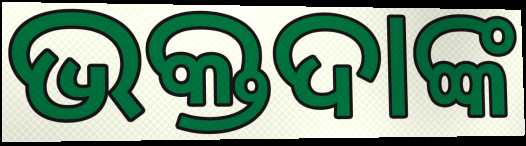
ଭକ୍ତଦାଙ୍କ